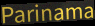
Parinama